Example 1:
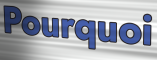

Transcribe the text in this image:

Pourquoi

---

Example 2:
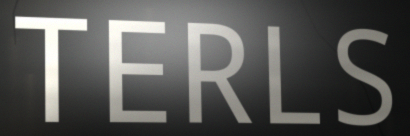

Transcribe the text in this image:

TERLS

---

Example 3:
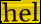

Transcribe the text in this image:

hel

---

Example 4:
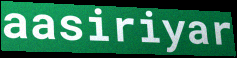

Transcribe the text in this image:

aasiriyar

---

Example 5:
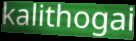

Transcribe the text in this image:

kalithogai